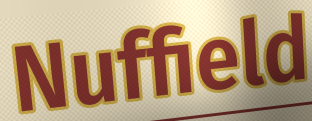
Nuffield